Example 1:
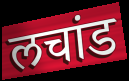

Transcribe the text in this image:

लचांड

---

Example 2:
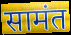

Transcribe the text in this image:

सामंत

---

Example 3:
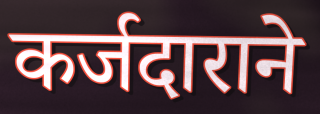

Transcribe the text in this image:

कर्जदाराने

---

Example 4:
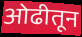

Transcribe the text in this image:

ओढीतून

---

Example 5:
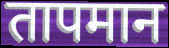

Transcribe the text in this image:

तापमान